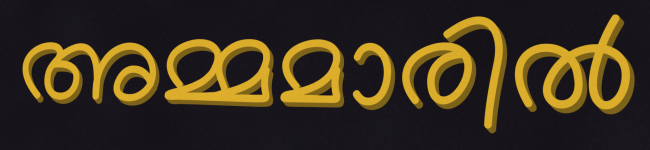
അമ്മമാരിൽ